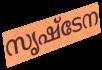
സൃഷ്ടേന